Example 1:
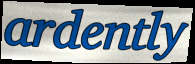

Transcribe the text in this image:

ardently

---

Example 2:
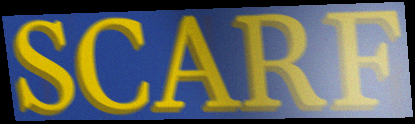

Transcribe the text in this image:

SCARF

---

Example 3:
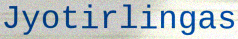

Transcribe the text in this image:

Jyotirlingas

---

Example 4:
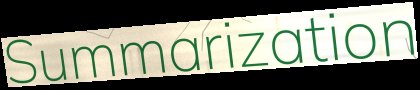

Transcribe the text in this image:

Summarization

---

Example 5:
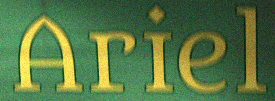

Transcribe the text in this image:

Ariel